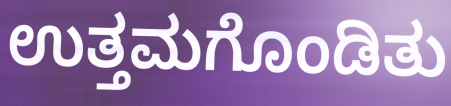
ಉತ್ತಮಗೊಂಡಿತು